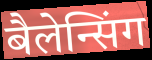
बैलेन्सिंग